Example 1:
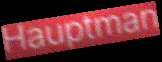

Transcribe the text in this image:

Hauptman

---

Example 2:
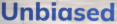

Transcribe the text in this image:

Unbiased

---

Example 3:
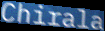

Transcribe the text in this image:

Chirala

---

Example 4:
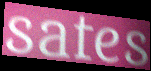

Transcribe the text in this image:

sates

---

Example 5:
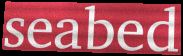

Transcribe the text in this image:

seabed